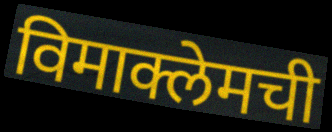
विमाक्लेमची